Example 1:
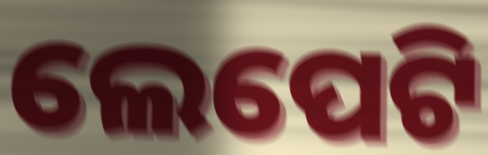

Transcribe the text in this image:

ଲେପେଟି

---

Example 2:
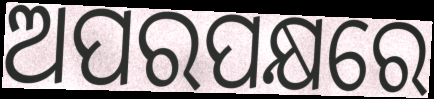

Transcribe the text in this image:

ଅପରପକ୍ଷରେ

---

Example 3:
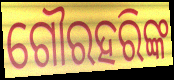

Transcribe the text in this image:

ଗୌରହରିଙ୍କ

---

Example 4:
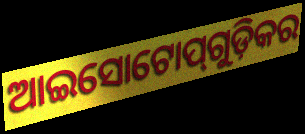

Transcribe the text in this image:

ଆଇସୋଟୋପ୍‌ଗୁଡ଼ିକର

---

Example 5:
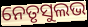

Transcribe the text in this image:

ନେତୃସୁଲଭ